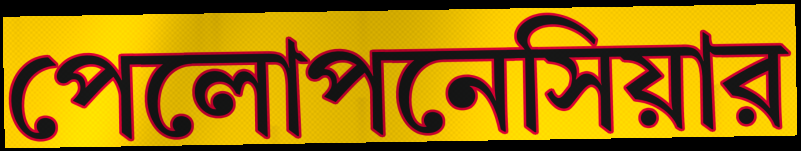
পেলোপনেসিয়ার